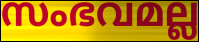
സംഭവമല്ല